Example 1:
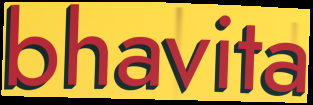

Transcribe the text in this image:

bhavita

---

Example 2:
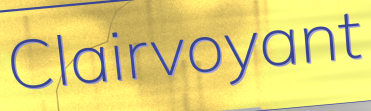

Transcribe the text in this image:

Clairvoyant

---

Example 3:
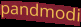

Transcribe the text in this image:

pandmodi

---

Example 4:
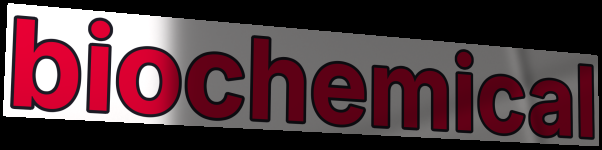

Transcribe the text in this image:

biochemical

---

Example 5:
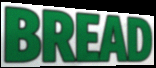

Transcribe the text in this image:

BREAD